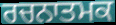
ਰਚਨਾਤਮਕ